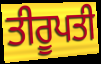
ਤੀਰੂਪਤੀ